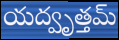
యద్వృత్తమ్